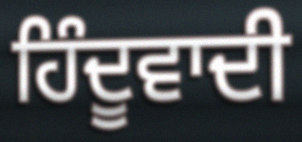
ਹਿੰਦੂਵਾਦੀ